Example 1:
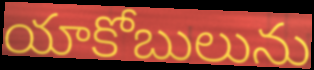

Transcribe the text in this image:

యాకోబులును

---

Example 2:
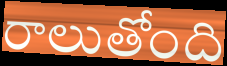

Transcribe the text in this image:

రాలుతోంది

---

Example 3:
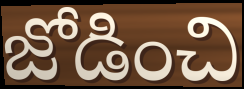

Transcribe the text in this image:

జోడించి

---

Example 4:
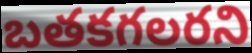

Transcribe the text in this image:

బతకగలరని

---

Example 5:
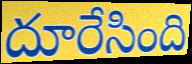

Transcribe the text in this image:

దూరేసింది